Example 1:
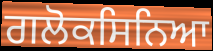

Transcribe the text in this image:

ਗਲੋਕਸਿਨਿਆ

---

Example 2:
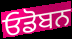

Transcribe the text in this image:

ਓਡੋਬਨ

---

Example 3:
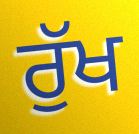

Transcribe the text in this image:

ਰੁੱਖ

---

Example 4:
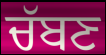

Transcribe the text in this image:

ਚੱਬਣ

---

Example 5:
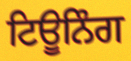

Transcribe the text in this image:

ਟਿਊਨਿੰਗ